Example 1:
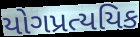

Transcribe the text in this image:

યોગપ્રત્યયિક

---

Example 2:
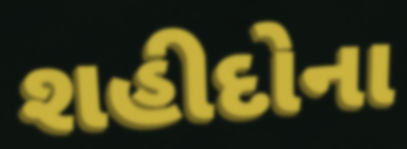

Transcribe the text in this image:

શહીદોના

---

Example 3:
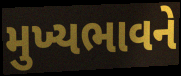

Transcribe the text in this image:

મુખ્યભાવને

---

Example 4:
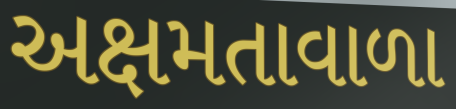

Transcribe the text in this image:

અક્ષમતાવાળા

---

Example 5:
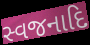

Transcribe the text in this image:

સ્વજનાદિ